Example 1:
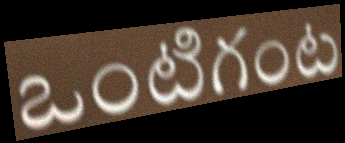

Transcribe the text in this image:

ఒంటిగంట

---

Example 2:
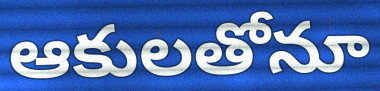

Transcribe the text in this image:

ఆకులతోనూ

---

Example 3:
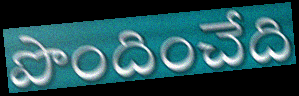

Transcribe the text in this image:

పొందించేది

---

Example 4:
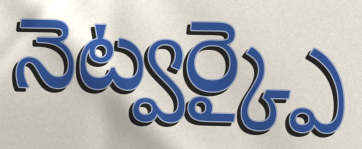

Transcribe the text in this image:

నెట్వర్క్పై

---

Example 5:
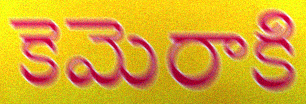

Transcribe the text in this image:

కెమెరాకి